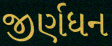
જીર્ણધન